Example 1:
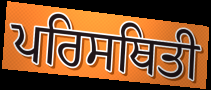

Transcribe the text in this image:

ਪਰਿਸਥਿਤੀ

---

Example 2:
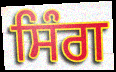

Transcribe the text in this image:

ਸਿੰਗ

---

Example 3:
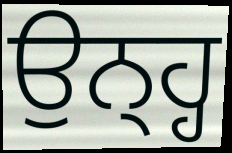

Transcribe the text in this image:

ਉਨ੍ਹ੍ਹ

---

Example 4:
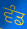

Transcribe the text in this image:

ਵੰਡ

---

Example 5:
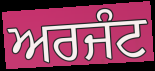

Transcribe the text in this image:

ਅਰਜੰਟ